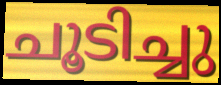
ചൂടിച്ചു